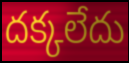
దక్కలేదు